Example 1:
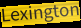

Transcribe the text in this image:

Lexington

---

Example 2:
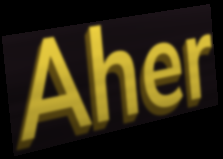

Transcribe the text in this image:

Aher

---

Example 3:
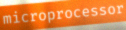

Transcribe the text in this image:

microprocessor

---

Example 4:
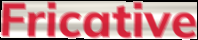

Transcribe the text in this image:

Fricative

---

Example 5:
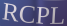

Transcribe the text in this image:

RCPL